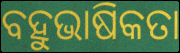
ବହୁଭାଷିକତା